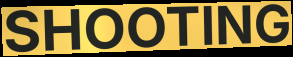
SHOOTING